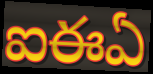
ఐఈఏ